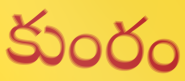
కుంరం